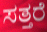
ಸತ್ತರೆ